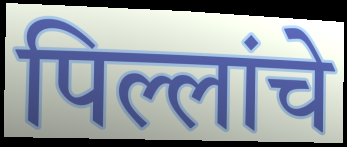
पिल्लांचे